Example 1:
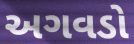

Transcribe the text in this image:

અગવડો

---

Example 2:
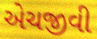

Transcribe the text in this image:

એચજીવી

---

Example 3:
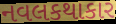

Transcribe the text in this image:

નવલકથાકાર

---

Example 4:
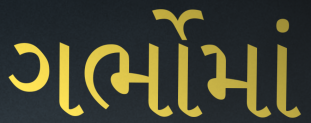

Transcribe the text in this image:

ગર્ભોમાં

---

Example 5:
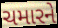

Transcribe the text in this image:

ચમારને